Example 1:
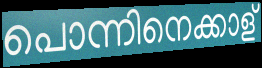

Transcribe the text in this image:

പൊന്നിനെക്കാള്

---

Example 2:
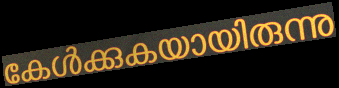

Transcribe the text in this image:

കേൾക്കുകയായിരുന്നു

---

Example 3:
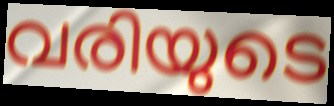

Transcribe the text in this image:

വരിയുടെ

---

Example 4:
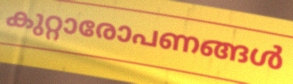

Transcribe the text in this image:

കുറ്റാരോപണങ്ങൾ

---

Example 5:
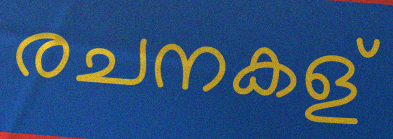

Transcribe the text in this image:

രചനകള്